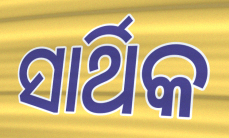
ସାର୍ଥିକ